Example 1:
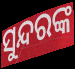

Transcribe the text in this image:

ସୁନ୍ଦରଙ୍କ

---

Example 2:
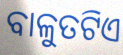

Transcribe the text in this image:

ବାଳୁତଟିଏ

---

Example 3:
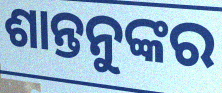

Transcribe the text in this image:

ଶାନ୍ତନୁଙ୍କର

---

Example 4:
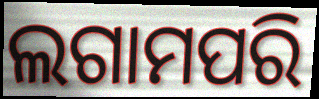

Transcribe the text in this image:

ଲଗାମପରି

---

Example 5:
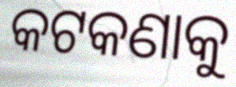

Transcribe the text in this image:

କଟକଣାକୁ